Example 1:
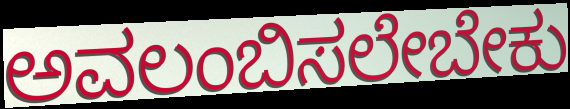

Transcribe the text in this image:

ಅವಲಂಬಿಸಲೇಬೇಕು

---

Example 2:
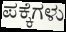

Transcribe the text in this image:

ಪಕ್ಕೆಗಳು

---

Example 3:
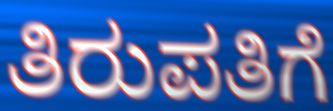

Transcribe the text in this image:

ತಿರುಪತಿಗೆ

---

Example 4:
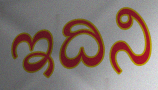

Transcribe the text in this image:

ಇದಿನಿ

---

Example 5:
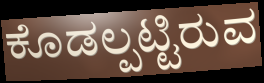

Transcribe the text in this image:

ಕೊಡಲ್ಪಟ್ಟಿರುವ